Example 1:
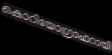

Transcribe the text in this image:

കൊറിയോഗ്രാഫറായി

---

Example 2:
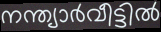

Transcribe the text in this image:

നന്ത്യാർവീട്ടിൽ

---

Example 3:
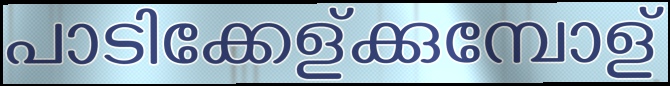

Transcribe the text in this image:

പാടിക്കേള്ക്കുമ്പോള്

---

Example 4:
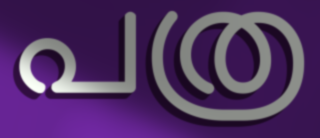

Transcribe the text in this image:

പത്ര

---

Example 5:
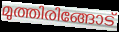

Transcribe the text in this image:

മുത്തിരിങ്ങോട്